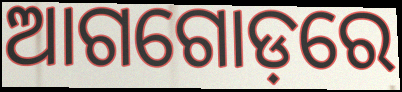
ଆଗଗୋଡ଼ରେ